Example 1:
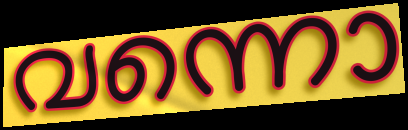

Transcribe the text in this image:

വന്നൊ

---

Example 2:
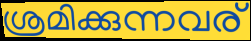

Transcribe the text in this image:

ശ്രമിക്കുന്നവര്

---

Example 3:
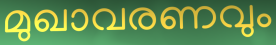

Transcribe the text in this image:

മുഖാവരണവും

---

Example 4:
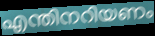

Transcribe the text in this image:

എന്തിനറിയണം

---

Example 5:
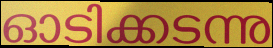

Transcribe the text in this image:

ഓടിക്കടന്നു